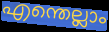
എന്തെല്ലാം